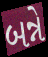
બન્ને